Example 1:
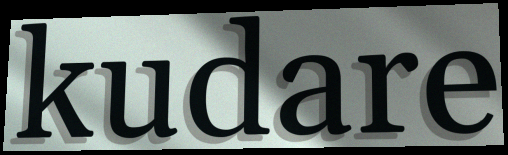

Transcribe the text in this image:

kudare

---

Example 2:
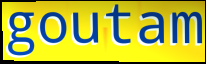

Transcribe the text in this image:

goutam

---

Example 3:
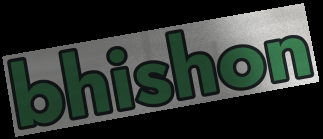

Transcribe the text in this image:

bhishon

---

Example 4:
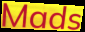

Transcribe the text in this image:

Mads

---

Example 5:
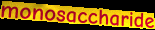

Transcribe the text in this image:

monosaccharide